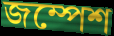
জম্পেশ